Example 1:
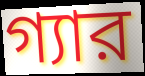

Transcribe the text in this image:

গ্যার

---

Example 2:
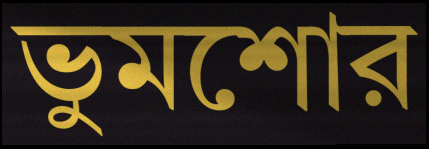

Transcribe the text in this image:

ভুমশোর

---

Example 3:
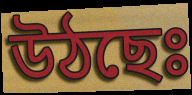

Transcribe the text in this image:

উঠছেঃ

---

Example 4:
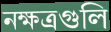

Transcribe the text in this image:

নক্ষত্রগুলি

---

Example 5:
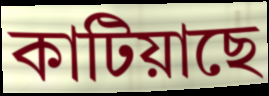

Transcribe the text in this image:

কাটিয়াছে